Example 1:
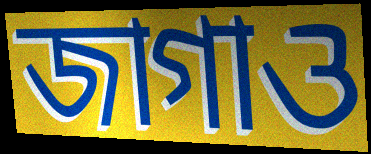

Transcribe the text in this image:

জাগাও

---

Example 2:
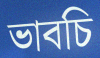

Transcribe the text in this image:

ভাবচি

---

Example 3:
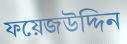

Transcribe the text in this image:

ফয়েজউদ্দিন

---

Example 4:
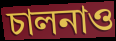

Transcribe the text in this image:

চালনাও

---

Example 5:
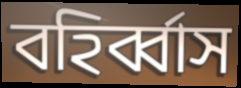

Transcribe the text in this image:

বহির্ব্বাস